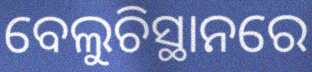
ବେଲୁଚିସ୍ଥାନରେ